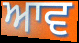
ਆਵ